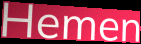
Hemen